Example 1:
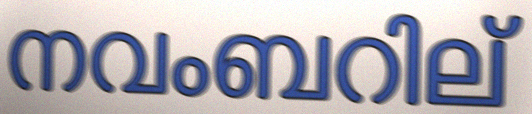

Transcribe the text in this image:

നവംബറില്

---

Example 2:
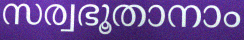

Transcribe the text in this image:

സര്വഭൂതാനാം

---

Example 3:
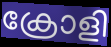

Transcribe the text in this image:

ക്രോളി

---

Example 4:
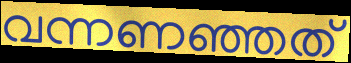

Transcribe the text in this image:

വന്നണഞ്ഞത്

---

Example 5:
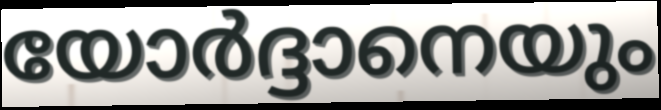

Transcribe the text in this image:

യോർദ്ദാനെയും